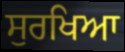
ਸੁਰਖਿਆ